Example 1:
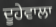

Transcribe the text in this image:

ਦੂਹੇਵਾਲਾ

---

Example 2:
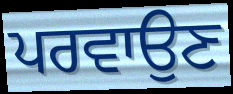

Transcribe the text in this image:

ਪਰਵਾਉਣ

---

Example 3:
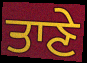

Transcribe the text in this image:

ਤਾਣੇ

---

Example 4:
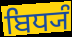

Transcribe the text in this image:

ਬਿਧ੍ਯੰ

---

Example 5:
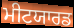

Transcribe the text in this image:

ਮੀਟਯਾਰਡ